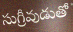
సుగ్రీవుడుతో